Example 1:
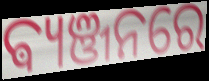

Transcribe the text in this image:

ଵ୍ୟଞ୍ଜନରେ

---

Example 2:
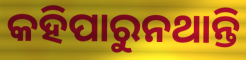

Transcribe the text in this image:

କହିପାରୁନଥାନ୍ତି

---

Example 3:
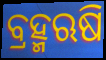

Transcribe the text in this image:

ବ୍ରହ୍ମଋଷି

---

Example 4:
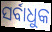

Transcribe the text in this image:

ସର୍ବାଧୁକ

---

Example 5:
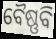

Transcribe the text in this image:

ବୈଷ୍ଣବି